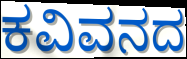
ಕವಿವನದ